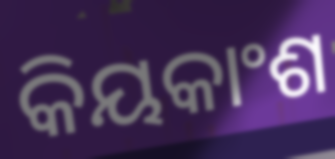
କିୟକାଂଶ